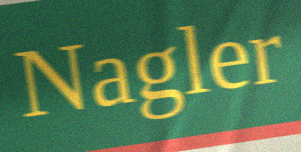
Nagler